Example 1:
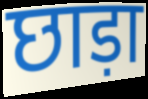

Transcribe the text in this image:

छाड़ा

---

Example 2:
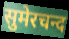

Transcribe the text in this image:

सुमेरचन्द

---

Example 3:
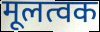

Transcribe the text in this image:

मूलत्वक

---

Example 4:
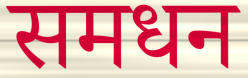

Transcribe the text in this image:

समधन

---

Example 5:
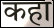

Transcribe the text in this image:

कहा